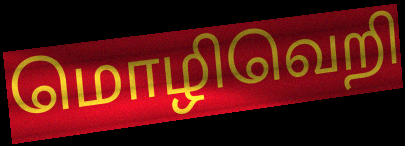
மொழிவெறி